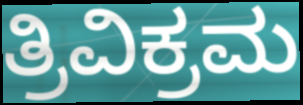
ತ್ರಿವಿಕ್ರಮ